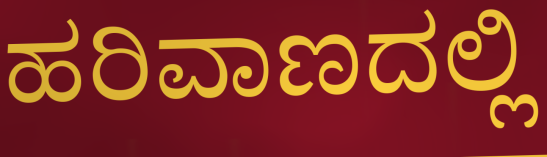
ಹರಿವಾಣದಲ್ಲಿ